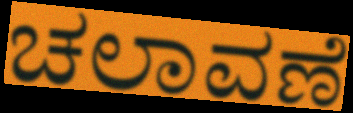
ಚಲಾವಣೆ